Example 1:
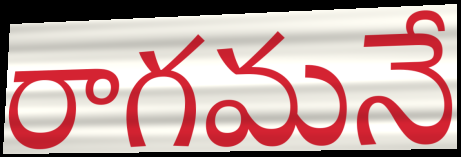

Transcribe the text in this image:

రాగమనే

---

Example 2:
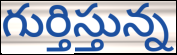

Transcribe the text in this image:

గుర్తిస్తున్న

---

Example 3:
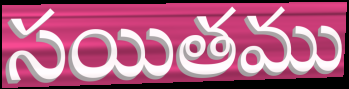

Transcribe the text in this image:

సయితము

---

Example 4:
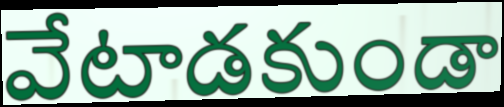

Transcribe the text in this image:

వేటాడకుండా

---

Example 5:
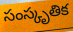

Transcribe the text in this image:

సంస్కృతిక